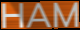
HAM